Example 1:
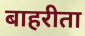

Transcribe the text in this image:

बाहरीता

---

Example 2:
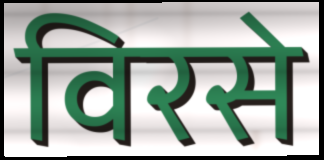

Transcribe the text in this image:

विरसे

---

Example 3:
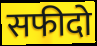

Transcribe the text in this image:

सफीदो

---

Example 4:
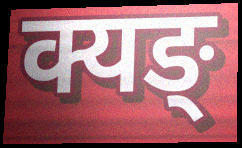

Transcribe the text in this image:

क्यङ्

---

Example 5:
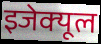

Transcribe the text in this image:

इजेक्यूल